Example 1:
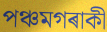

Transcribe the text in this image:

পঞ্চমগৰাকী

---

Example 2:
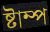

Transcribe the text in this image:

ষ্টাম্প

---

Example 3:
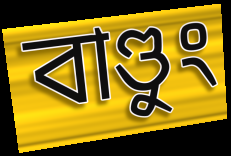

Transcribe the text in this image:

বাণ্ডুং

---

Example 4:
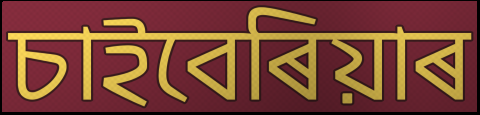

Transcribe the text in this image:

চাইবেৰিয়াৰ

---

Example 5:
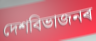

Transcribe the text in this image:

দেশবিভাজনৰ